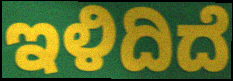
ಇಳಿದಿದೆ